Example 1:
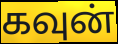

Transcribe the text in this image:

கவுன்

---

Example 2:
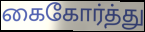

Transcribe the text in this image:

கைகோர்த்து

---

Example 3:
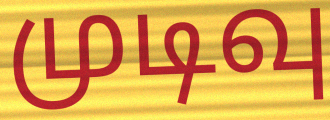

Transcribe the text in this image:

முடிவு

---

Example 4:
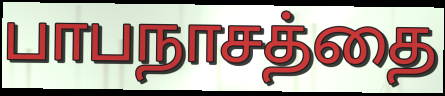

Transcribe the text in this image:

பாபநாசத்தை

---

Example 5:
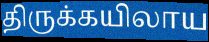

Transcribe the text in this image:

திருக்கயிலாய